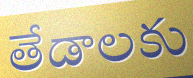
తేడాలకు